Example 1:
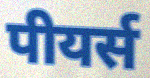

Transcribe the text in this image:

पीयर्स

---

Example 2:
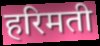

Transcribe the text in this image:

हरिमती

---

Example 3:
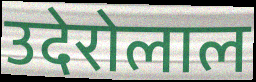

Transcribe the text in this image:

उदेरोलाल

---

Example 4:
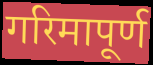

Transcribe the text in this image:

गरिमापूर्ण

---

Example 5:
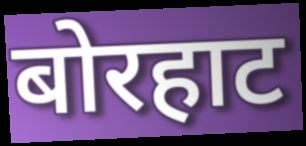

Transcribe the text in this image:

बोरहाट